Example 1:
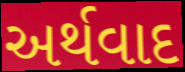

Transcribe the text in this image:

અર્થવાદ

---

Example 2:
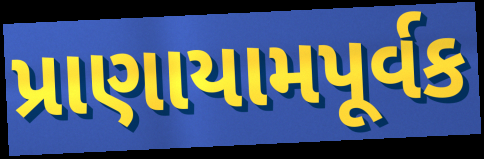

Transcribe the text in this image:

પ્રાણાયામપૂર્વક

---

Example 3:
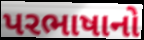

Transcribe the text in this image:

પરભાષાનો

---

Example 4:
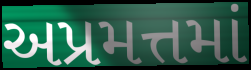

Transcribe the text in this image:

અપ્રમત્તમાં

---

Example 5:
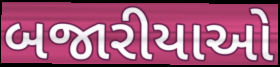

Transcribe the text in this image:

બજારીયાઓ